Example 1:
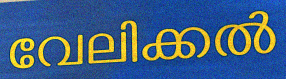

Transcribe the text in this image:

വേലിക്കൽ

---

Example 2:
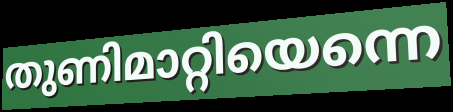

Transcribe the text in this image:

തുണിമാറ്റിയെന്നെ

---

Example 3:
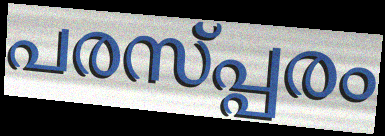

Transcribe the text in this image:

പരസ്പ്പരം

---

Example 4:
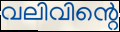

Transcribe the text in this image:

വലിവിന്റെ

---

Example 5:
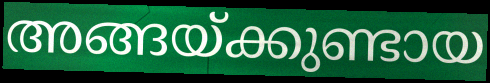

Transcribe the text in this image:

അങ്ങയ്ക്കുണ്ടായ